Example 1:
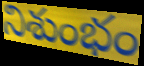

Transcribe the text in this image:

నిశుంభం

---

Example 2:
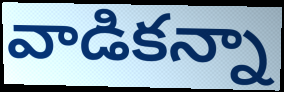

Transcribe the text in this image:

వాడికన్నా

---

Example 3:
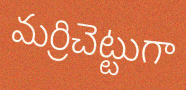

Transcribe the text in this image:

మర్రిచెట్టుగా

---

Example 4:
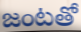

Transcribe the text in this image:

జంటతో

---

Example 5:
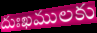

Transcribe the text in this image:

దుఃఖములకు